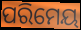
ପରିମେୟ